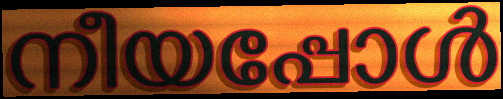
നീയപ്പോൾ